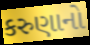
કરુણાનો